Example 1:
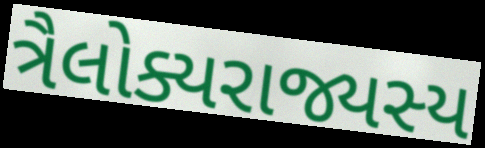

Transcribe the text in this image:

ત્રૈલોક્યરાજ્યસ્ય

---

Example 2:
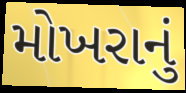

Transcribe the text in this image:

મોખરાનું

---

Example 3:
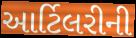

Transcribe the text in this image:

આર્ટિલરીની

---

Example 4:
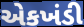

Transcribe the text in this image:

એકખંડી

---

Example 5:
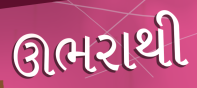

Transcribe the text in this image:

ઊભરાથી